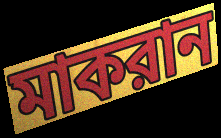
মাকরান